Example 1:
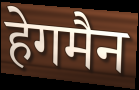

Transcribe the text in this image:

हेगमैन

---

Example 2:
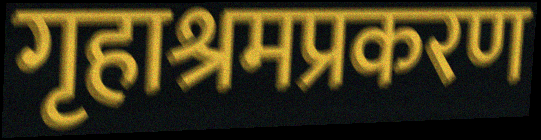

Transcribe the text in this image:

गृहाश्रमप्रकरण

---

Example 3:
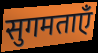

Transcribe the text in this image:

सुगमताएँ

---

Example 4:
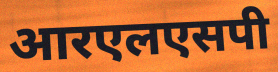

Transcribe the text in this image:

आरएलएसपी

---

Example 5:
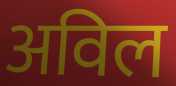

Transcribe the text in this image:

अविल